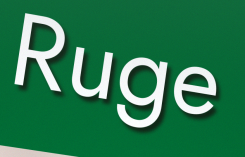
Ruge